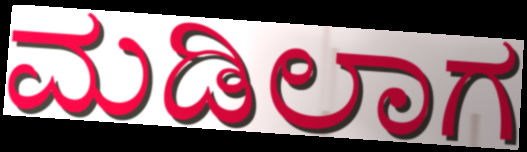
ಮಡಿಲಾಗ